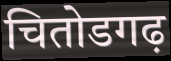
चितोडगढ़